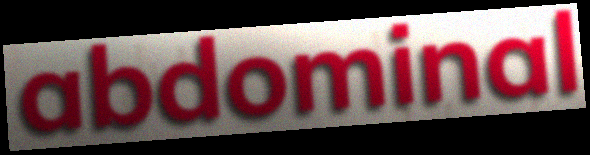
abdominal